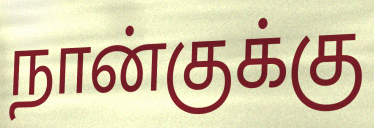
நான்குக்கு